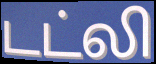
டட்லி